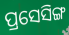
ପ୍ରସେସିଙ୍ଗ